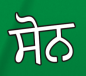
ਸੋਨ